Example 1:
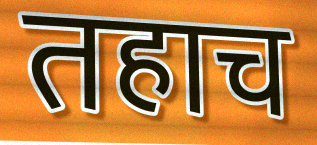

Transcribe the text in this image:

तहाच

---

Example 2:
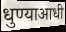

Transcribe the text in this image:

धुण्याआधी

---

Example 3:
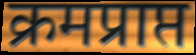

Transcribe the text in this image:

क्रमप्राप्त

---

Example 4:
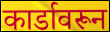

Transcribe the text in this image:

कार्डावरून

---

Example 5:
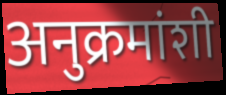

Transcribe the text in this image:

अनुक्रमांशी